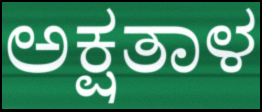
ಅಕ್ಷತಾಳ